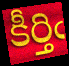
కీర్తిఁ